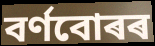
বৰ্ণবোৰৰ